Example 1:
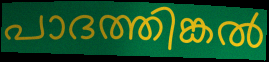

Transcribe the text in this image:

പാദത്തിങ്കൽ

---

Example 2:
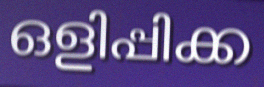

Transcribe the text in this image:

ഒളിപ്പിക്ക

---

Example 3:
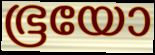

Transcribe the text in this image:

ഭൂയോ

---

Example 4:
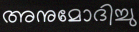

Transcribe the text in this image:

അനുമോദിച്ചു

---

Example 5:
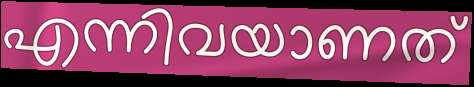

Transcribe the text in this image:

എന്നിവയാണത്